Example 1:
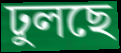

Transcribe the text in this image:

ঢুলছে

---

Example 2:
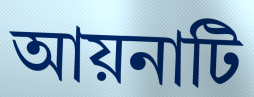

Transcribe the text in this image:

আয়নাটি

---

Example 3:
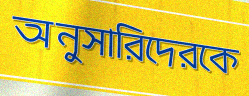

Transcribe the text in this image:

অনুসারিদেরকে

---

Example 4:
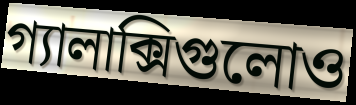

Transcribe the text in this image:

গ্যালাক্সিগুলোও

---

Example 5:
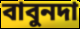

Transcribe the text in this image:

বাবুনদা